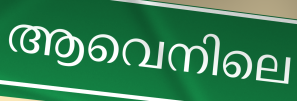
ആവെനിലെ